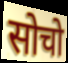
सोचो